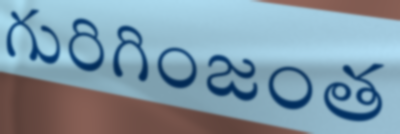
గురిగింజంత